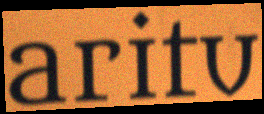
aritu